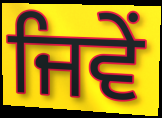
ਜਿਵੇਂ